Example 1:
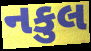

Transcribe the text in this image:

નકુલ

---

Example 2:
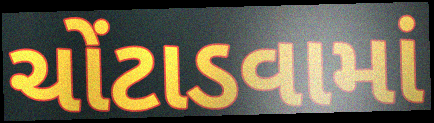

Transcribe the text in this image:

ચોંટાડવામાં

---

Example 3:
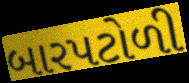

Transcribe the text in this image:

બારપટોળી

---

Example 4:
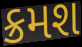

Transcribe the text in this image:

ક્રમશ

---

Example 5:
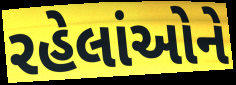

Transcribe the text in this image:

રહેલાંઓને